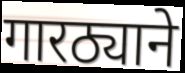
गारठ्याने